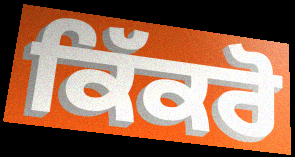
ਕਿੱਕਰੋ